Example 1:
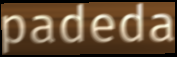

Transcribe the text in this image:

padeda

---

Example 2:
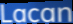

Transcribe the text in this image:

Lacan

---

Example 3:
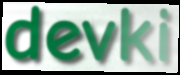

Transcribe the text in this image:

devki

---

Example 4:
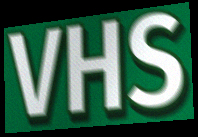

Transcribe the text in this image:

VHS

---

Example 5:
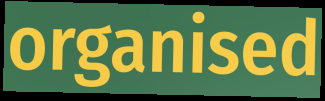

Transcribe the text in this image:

organised